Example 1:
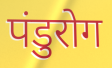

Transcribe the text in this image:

पंडुरोग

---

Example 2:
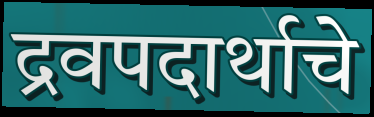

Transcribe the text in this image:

द्रवपदार्थाचे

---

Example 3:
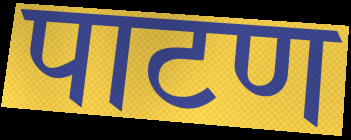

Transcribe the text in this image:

पाटण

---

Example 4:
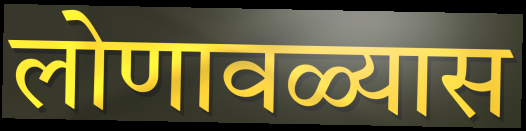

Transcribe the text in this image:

लोणावळ्यास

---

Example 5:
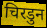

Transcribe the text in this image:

चिरडुन